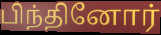
பிந்தினோர்